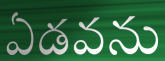
ఏడవను